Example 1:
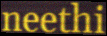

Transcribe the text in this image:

neethi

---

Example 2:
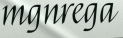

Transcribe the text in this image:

mgnrega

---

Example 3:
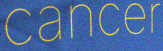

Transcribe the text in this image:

cancer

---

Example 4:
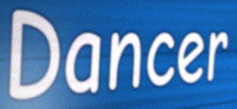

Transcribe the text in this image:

Dancer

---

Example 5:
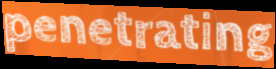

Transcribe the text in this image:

penetrating